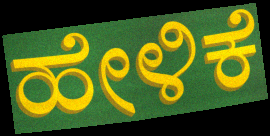
ಹೇಳಿಕೆ